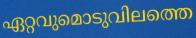
ഏറ്റവുമൊടുവിലത്തെ